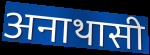
अनाथासी